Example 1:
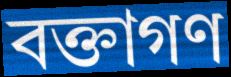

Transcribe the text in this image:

বক্তাগণ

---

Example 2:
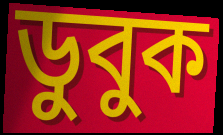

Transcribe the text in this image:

ডুবুক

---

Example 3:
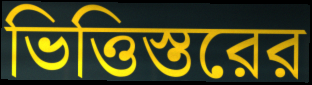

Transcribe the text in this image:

ভিত্তিস্তরের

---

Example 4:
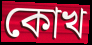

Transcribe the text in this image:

কোখ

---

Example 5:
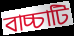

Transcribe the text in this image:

বাচ্চাটি